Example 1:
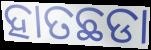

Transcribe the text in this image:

ହାତଛଡା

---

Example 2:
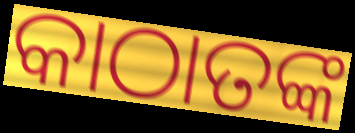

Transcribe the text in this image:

କାଠାତଙ୍କ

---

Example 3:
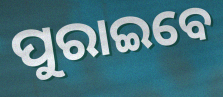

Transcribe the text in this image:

ପୁରାଇବେ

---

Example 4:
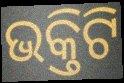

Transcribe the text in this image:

ଭକ୍ତିଟି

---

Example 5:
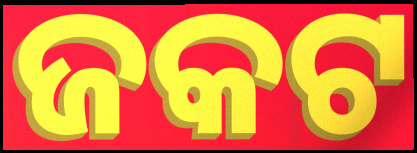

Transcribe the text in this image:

ଜକଟ